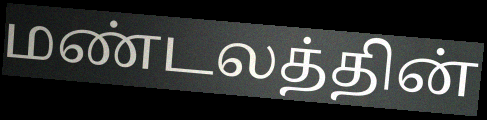
மண்டலத்தின்